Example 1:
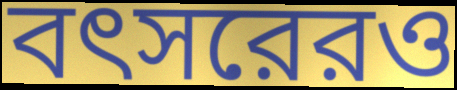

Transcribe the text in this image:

বৎসরেরও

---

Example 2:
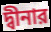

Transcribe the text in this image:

দ্বীনার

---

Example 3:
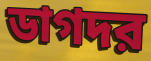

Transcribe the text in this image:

ডাগদর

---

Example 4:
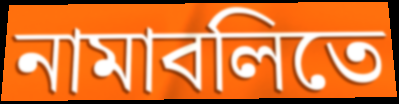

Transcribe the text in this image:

নামাবলিতে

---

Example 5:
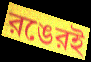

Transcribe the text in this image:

রঙেরই